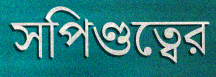
সপিণ্ডত্বের